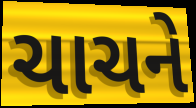
ચાચને